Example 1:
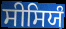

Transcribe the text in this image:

ਸੀਸਿਯੰ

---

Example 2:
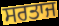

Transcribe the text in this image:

ਸਰਤਾਜ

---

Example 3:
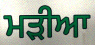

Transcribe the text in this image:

ਮੜੀਆ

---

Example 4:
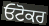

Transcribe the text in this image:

ਓਟੋਕਰ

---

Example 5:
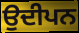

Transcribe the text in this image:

ਉਦੀਪਨ